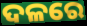
ଦଳରେ